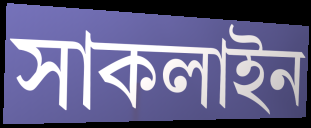
সাকলাইন